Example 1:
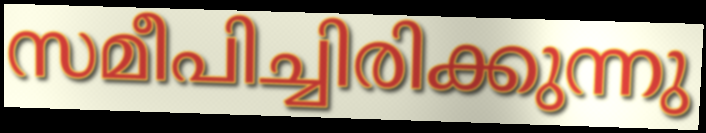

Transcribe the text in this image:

സമീപിച്ചിരിക്കുന്നു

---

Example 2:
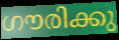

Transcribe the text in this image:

ഗൗരിക്കു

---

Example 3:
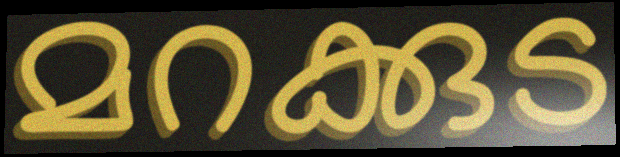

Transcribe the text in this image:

മറക്കുട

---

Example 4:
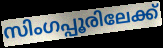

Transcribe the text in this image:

സിംഗപ്പൂരിലേക്ക്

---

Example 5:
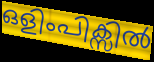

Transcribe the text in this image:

ഒളിംപിക്സിൽ